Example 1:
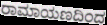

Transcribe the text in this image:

ರಾಮಾಯಣದಿಂದ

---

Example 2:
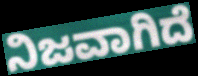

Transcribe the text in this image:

ನಿಜವಾಗಿದೆ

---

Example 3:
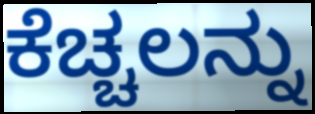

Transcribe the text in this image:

ಕೆಚ್ಚಲನ್ನು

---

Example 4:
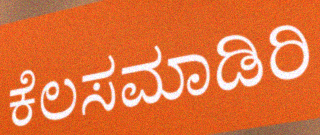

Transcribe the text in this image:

ಕೆಲಸಮಾಡಿರಿ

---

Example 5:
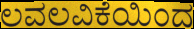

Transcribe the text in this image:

ಲವಲವಿಕೆಯಿಂದ